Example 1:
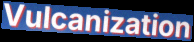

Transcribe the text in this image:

Vulcanization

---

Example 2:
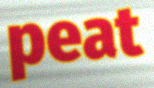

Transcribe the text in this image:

peat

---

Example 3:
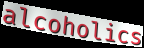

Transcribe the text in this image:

alcoholics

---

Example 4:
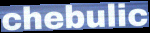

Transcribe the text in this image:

chebulic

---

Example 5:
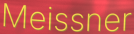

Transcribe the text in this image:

Meissner